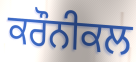
ਕਰੌਨੀਕਲ